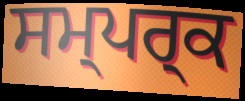
ਸਮ੍ਪਰ੍ਕ